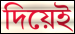
দিয়েই